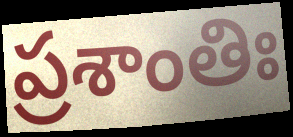
ప్రశాంతిః